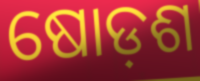
ଷୋଡ଼ଶ